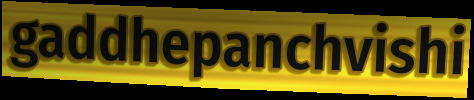
gaddhepanchvishi